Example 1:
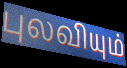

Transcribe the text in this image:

புலவியும்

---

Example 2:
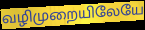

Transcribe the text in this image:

வழிமுறையிலேயே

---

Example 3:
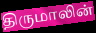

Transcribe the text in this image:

திருமாலின்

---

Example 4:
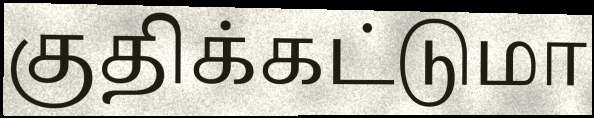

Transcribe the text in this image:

குதிக்கட்டுமா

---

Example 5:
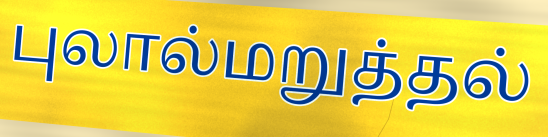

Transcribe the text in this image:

புலால்மறுத்தல்